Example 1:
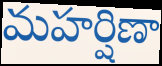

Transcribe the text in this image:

మహర్షిణా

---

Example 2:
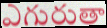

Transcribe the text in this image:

ఎగురుతా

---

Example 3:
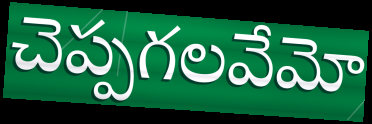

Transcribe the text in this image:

చెప్పగలవేమో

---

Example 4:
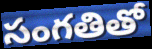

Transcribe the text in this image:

సంగతితో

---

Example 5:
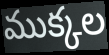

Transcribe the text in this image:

ముక్కల